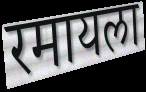
रमायला